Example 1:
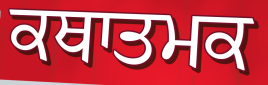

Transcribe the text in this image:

ਕਥਾਤਮਕ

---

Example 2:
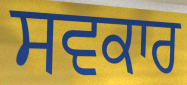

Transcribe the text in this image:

ਸਵਕਾਰ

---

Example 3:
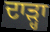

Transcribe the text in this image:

ਦਾੜ੍ਹਾ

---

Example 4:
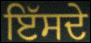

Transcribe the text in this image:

ਇੱਸਦੇ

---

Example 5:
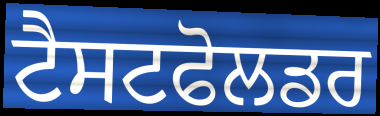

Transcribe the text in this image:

ਟੈਸਟਫੋਲਡਰ